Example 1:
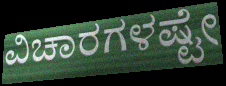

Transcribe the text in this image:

ವಿಚಾರಗಳಷ್ಟೇ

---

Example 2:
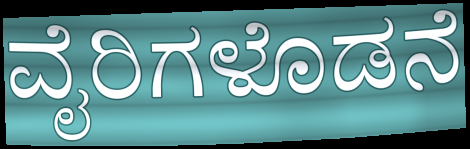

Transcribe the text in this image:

ವೈರಿಗಳೊಡನೆ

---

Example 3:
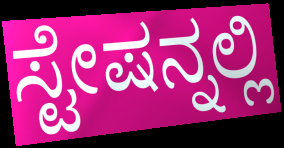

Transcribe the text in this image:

ಸ್ಟೇಷನ್ನಲ್ಲಿ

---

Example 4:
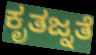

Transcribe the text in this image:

ಕೃತಜ್ನತೆ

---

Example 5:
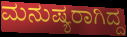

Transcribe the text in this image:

ಮನುಷ್ಯರಾಗಿದ್ದ